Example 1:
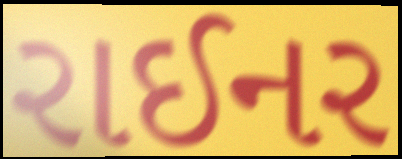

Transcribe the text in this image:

રાઈનર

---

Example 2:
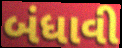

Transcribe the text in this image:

બંધાવી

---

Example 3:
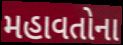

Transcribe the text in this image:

મહાવતોના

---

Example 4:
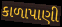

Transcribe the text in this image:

કાળાપાણી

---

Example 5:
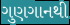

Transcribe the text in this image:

ગુણગાનથી